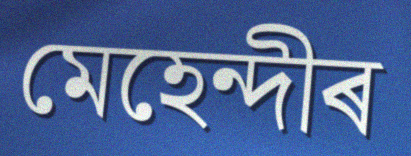
মেহেন্দীৰ